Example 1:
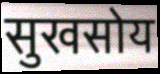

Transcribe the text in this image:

सुखसोय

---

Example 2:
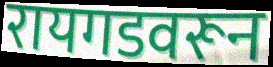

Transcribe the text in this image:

रायगडवरून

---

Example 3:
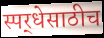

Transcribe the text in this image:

स्पर्धेसाठीच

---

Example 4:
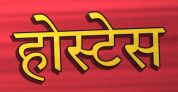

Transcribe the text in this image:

होस्टेस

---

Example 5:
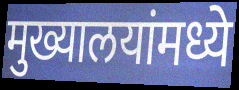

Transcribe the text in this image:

मुख्यालयांमध्ये